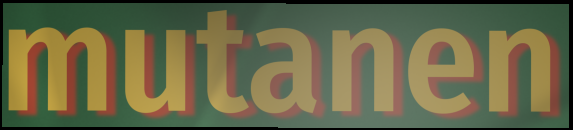
mutanen